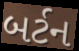
બર્ટન